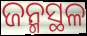
ଜନ୍ମସ୍ଥଳ